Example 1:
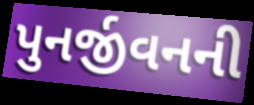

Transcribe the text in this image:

પુનર્જીવનની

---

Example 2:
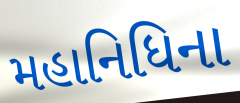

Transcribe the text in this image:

મહાનિધિના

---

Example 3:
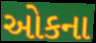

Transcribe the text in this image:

ઓકના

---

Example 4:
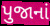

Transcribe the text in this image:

પુજાનાં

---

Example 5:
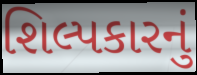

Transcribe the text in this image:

શિલ્પકારનું